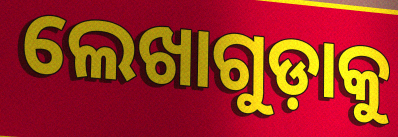
ଲେଖାଗୁଡ଼ାକୁ